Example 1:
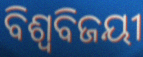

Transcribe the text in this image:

ବିଶ୍ବବିଜୟୀ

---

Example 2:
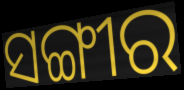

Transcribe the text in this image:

ସଙ୍ଗୀର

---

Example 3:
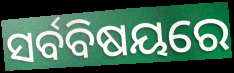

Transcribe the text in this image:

ସର୍ବବିଷୟରେ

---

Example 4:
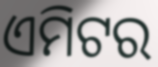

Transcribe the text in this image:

ଏମିଟର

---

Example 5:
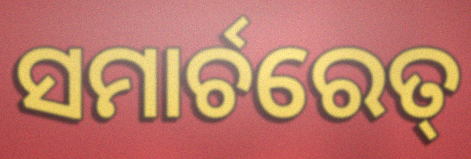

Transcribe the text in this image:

ସମାର୍ଚରେତ୍